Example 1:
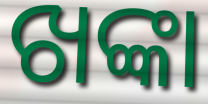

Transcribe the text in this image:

ଖଙ୍କା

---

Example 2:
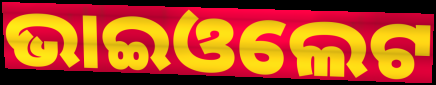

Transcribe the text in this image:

ଭାଇଓଲେଟ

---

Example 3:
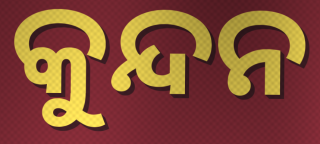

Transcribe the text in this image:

କୁନ୍ଦନ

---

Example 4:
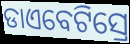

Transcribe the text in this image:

ଡାଏବେଟିସ୍ରେ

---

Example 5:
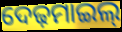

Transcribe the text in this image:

ଦେଢ଼ମାଇଲ୍